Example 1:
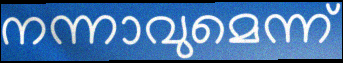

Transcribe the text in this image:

നന്നാവുമെന്ന്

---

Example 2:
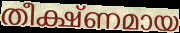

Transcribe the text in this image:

തീക്ഷ്‌ണമായ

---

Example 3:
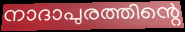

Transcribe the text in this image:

നാദാപുരത്തിന്റെ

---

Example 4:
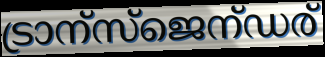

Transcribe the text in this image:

ട്രാന്സ്ജെന്ഡര്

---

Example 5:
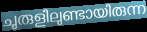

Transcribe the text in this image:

ചുരുളിലുണ്ടായിരുന്ന